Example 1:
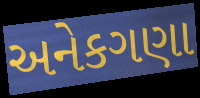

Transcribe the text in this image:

અનેકગણા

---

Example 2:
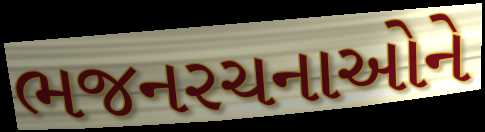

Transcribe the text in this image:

ભજનરચનાઓને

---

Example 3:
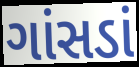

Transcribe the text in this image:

ગાંસડાં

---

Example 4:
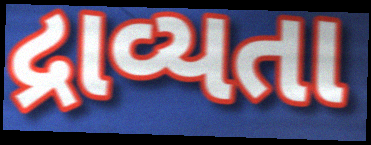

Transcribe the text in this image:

દ્રાવ્યતા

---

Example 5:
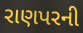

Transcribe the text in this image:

રાણપરની